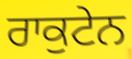
ਰਾਕੁਟੇਨ